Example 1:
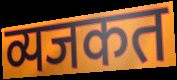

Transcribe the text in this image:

व्यजकत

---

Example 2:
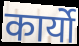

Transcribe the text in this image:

कार्यो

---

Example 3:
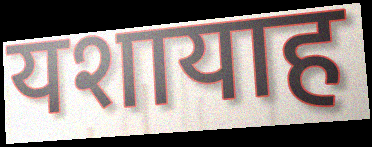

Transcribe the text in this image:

यशायाह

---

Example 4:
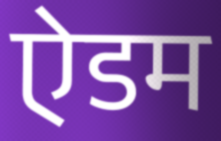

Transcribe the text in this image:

ऐडम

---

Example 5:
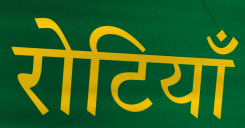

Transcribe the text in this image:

रोटियाँ